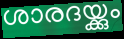
ശാരദയ്ക്കും